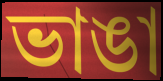
ভাঙা